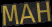
MAH